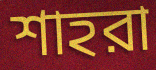
শাহরা